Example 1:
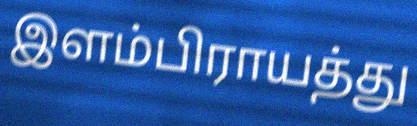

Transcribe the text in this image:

இளம்பிராயத்து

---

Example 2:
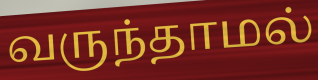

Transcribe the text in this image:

வருந்தாமல்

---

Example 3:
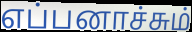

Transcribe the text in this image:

எப்பனாச்சும்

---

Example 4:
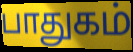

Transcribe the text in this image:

பாதுகம்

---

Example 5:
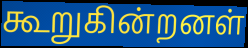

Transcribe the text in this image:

கூறுகின்றனள்